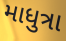
માધુત્રા